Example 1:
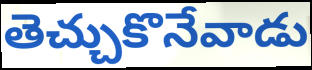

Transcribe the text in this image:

తెచ్చుకొనేవాడు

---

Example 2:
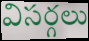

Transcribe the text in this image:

విసర్గలు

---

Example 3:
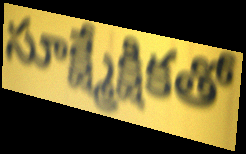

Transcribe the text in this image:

సూక్ష్మేక్షికతో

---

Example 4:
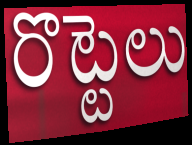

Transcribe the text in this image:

రొట్టెలు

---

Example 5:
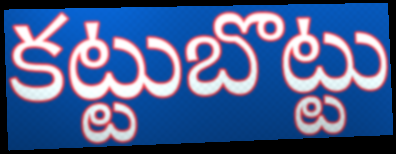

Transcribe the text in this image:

కట్టుబొట్టు